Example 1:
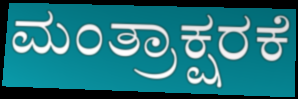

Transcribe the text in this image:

ಮಂತ್ರಾಕ್ಷರಕೆ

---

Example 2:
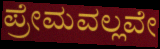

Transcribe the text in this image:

ಪ್ರೇಮವಲ್ಲವೇ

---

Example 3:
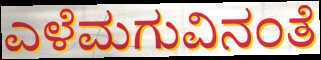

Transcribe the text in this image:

ಎಳೆಮಗುವಿನಂತೆ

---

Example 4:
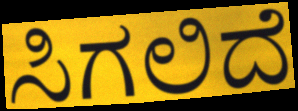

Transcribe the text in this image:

ಸಿಗಲಿದೆ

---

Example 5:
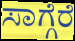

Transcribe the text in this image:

ಸಾಗ್ಗೆರೆ